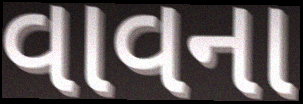
વાવના